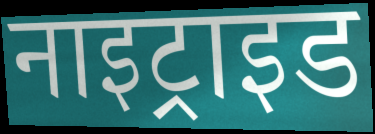
नाइट्राइड